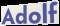
Adolf